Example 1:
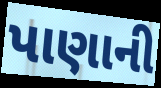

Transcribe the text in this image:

પાણાની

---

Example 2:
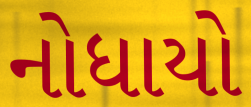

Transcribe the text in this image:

નોધાયો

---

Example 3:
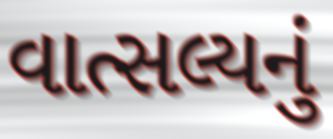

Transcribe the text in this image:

વાત્સલ્યનું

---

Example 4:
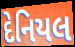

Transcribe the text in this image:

દેનિયલ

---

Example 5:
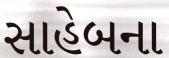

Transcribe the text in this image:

સાહેબના